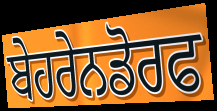
ਬੇਹਰੇਨਡੋਰਫ